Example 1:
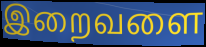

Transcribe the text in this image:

இறைவளை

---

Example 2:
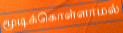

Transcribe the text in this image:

மூடிக்கொள்ளாமல்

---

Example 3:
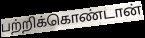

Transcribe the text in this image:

பற்றிக்கொண்டான்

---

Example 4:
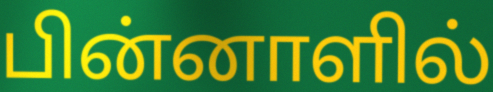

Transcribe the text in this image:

பின்னாளில்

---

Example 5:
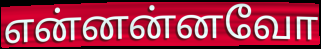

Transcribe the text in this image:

என்னன்னவோ